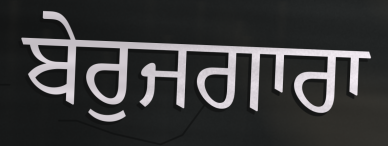
ਬੇਰੁਜਗਾਰਾ